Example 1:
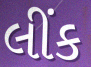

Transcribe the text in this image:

લીંક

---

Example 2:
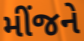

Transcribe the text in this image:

મીંજને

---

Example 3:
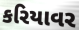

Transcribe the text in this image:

કરિયાવર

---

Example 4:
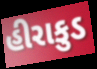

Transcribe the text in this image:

હીરાકુડ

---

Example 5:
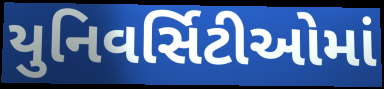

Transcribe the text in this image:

યુનિવર્સિટીઓમાં